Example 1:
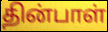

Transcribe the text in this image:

தின்பாள்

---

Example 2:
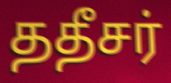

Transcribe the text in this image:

ததீசர்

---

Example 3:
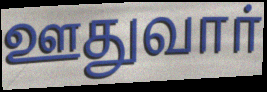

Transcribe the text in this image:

ஊதுவார்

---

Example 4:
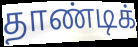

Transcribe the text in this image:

தாண்டிக்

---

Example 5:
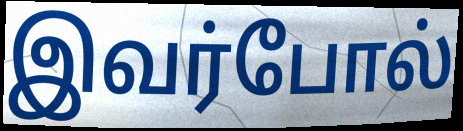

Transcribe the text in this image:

இவர்போல்